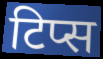
टिप्स